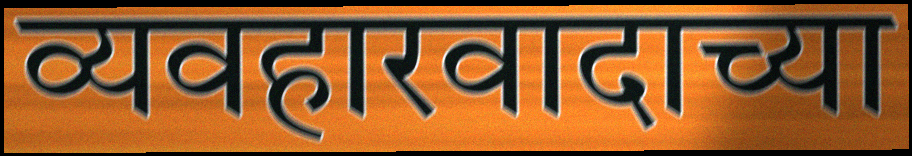
व्यवहारवादाच्या